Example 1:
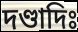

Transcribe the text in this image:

দণ্ডাদিঃ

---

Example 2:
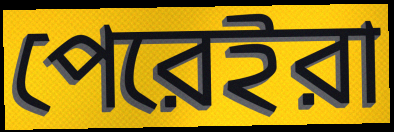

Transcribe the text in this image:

পেরেইরা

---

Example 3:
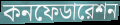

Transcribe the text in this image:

কনফেডারেশন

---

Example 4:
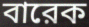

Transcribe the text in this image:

বারেক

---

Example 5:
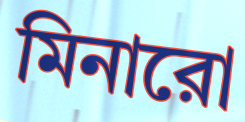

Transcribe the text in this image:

মিনারো